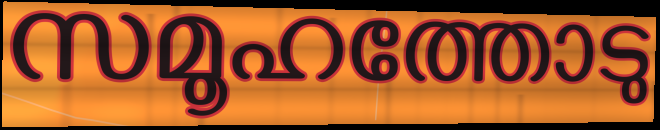
സമൂഹത്തോടു